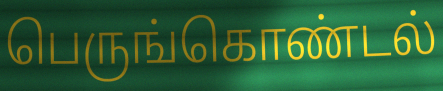
பெருங்கொண்டல்